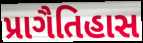
પ્રાગૈતિહાસ